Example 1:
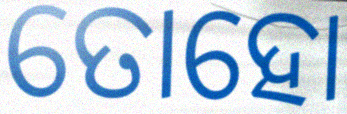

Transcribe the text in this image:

ତୋହୋ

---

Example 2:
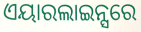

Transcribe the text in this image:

ଏୟାରଲାଇନ୍ସରେ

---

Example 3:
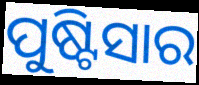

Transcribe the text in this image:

ପୁଷ୍ଟିସାର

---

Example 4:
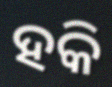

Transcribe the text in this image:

ହକି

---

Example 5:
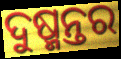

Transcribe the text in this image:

ଦୁଷ୍ମନ୍ତର